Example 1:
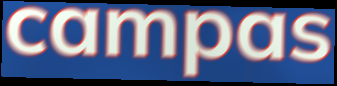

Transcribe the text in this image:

campas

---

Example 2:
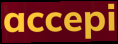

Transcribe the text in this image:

accepi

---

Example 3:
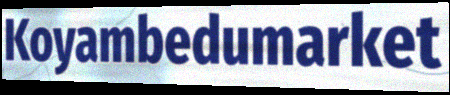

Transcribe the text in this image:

Koyambedumarket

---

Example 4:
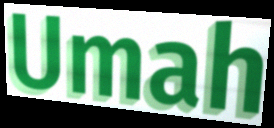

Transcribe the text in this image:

Umah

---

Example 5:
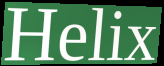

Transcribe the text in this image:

Helix